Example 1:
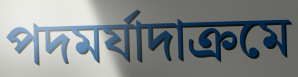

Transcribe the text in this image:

পদমর্যাদাক্রমে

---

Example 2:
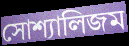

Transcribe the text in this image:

সোশ্যালিজম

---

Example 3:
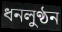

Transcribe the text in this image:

ধনলুণ্ঠন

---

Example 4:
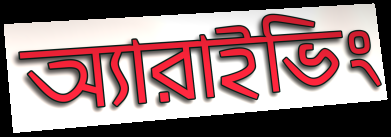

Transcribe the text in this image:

অ্যারাইভিং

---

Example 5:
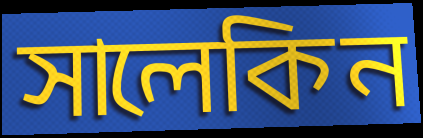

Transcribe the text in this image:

সালেকিন